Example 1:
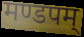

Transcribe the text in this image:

मण्डपम्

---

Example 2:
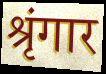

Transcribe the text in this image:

श्रृंगार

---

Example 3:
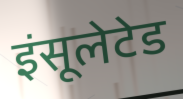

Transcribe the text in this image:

इंसूलेटेड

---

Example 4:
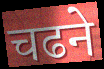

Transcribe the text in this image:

चढने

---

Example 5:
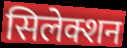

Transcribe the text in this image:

सिलेक्शन